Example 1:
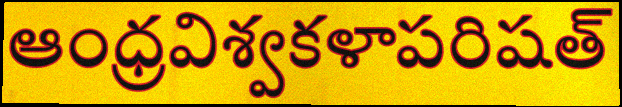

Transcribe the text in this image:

ఆంధ్రవిశ్వకళాపరిషత్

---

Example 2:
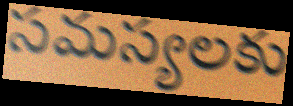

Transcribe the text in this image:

సమస్యలకు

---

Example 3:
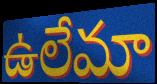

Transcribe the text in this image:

ఉలేమా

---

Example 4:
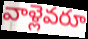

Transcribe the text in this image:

వాళ్లెవరూ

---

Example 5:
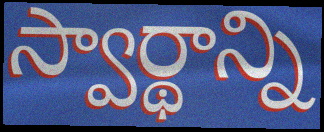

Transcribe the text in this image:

స్వార్థాన్ని